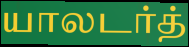
யாலடர்த்